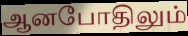
ஆனபோதிலும்